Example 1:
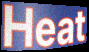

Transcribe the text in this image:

Heat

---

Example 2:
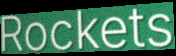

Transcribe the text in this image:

Rockets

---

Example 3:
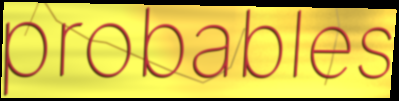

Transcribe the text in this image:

probables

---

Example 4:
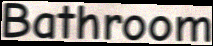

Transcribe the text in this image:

Bathroom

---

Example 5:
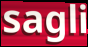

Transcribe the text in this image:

sagli